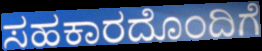
ಸಹಕಾರದೊಂದಿಗೆ